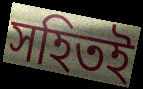
সহিতই